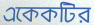
একেকটির